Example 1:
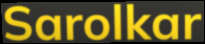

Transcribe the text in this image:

Sarolkar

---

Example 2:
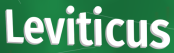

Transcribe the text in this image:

Leviticus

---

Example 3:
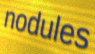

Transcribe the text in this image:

nodules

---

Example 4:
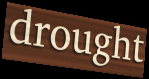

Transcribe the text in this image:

drought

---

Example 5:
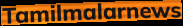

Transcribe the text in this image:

Tamilmalarnews